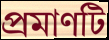
প্ৰমাণটি